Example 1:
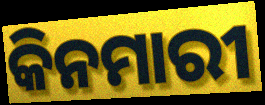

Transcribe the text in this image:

କିନମାରୀ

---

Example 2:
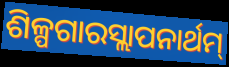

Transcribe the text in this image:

ଶିଳ୍ପଗାରସ୍ଲାପନାର୍ଥମ୍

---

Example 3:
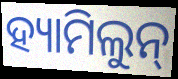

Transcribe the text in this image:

ହ୍ୟାମିଲୁନ୍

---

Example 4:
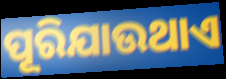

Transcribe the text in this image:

ପୂରିଯାଉଥାଏ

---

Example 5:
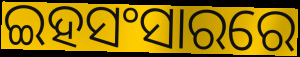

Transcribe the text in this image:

ଇହସଂସାରରେ